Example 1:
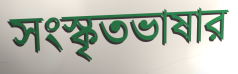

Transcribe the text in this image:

সংস্কৃতভাষার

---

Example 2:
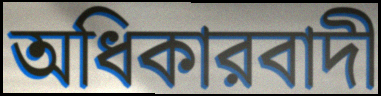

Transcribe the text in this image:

অধিকারবাদী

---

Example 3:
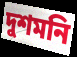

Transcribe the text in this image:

দুশমনি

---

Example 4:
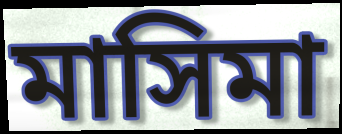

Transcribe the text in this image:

মাসিমা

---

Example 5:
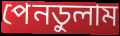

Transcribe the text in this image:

পেনডুলাম